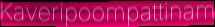
Kaveripoompattinam